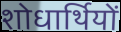
शोधार्थियों